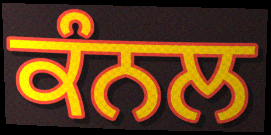
ਕੰਨਲ